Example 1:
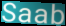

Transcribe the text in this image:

Saab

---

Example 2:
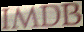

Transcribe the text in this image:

IMDB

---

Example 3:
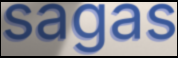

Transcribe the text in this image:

sagas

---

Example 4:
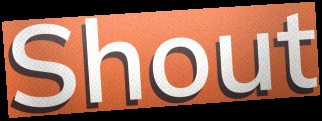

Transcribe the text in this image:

Shout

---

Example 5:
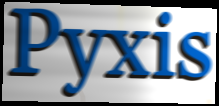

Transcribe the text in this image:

Pyxis